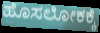
ಹೊಸಲೋಕಕ್ಕೆ